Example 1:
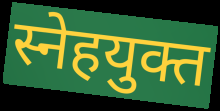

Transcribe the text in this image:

स्नेहयुक्त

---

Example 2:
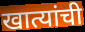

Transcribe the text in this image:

खात्यांची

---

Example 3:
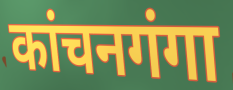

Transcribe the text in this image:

कांचनगंगा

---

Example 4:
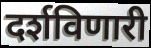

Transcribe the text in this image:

दर्शविणारी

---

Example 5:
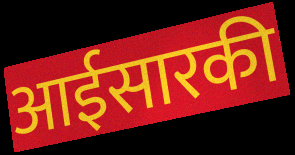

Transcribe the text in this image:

आईसारकी